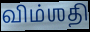
விம்ஶதி